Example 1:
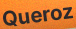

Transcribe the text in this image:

Queroz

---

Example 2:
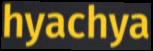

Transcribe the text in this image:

hyachya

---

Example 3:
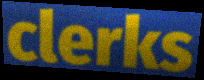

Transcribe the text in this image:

clerks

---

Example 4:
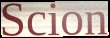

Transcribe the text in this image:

Scion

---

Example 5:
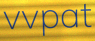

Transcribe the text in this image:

vvpat